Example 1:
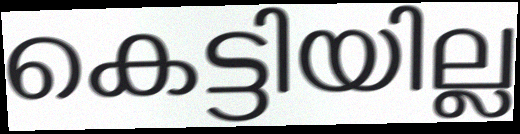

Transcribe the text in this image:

കെട്ടിയില്ല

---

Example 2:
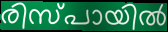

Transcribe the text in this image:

രിസ്പായിൽ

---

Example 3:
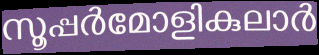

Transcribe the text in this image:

സൂപ്പർമോളികുലാർ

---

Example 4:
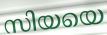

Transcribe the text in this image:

സിയയെ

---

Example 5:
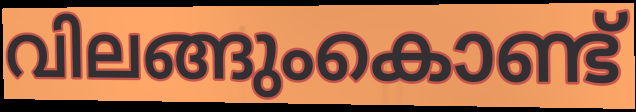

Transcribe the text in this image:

വിലങ്ങുംകൊണ്ട്